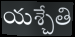
యశ్చేతి